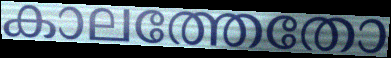
കാലത്തേതോ